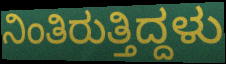
ನಿಂತಿರುತ್ತಿದ್ದಳು